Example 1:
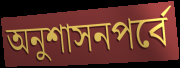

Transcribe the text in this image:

অনুশাসনপর্বে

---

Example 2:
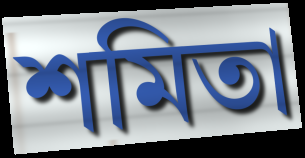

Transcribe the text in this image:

শমিতা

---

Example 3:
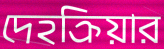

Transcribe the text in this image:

দেহক্রিয়ার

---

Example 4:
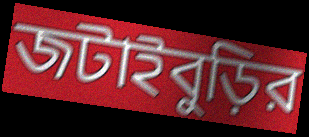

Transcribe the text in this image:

জটাইবুড়ির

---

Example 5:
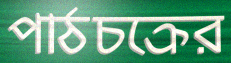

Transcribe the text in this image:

পাঠচক্রের